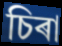
চিৰা